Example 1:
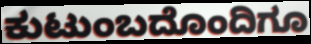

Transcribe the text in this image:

ಕುಟುಂಬದೊಂದಿಗೂ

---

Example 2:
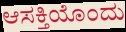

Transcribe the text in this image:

ಆಸಕ್ತಿಯೊಂದು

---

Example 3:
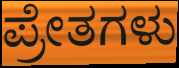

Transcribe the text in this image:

ಪ್ರೇತಗಳು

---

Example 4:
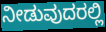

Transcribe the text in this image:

ನೀಡುವುದರಲ್ಲಿ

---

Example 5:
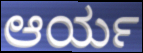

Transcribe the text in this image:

ಆರ್ಯ